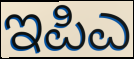
ಇಪಿಎ